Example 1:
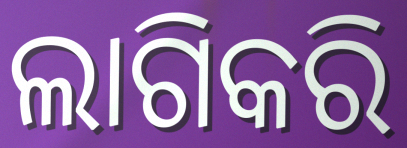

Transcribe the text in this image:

ଲାଗିକରି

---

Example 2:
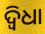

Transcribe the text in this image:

ଦ୍ୱିଧା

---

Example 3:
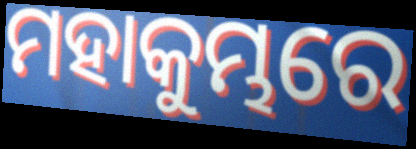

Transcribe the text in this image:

ମହାକୁମ୍ଭରେ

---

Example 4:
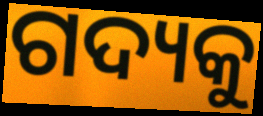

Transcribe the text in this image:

ଗଦ୍ୟକୁ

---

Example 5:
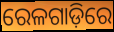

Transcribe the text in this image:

ରେଳଗାଡ଼ିରେ